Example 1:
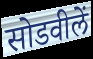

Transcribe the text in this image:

सोडवीलें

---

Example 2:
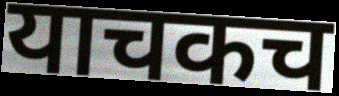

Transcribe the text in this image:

याचकच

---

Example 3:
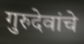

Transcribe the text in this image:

गुरुदेवांचे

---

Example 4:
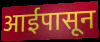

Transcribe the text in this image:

आईपासून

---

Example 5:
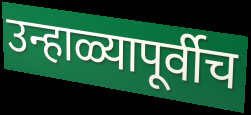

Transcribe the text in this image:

उन्हाळ्यापूर्वीच